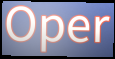
Oper